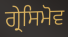
ਗ੍ਰੇਸਿਮੋਵ